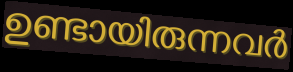
ഉണ്ടായിരുന്നവർ